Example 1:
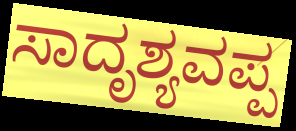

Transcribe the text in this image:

ಸಾದೃಶ್ಯವಪ್ಪ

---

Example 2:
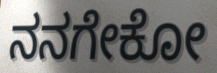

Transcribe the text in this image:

ನನಗೇಕೋ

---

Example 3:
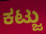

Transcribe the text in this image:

ಕಟ್ಜು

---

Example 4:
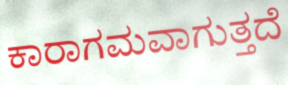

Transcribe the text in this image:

ಕಾರಾಗಮವಾಗುತ್ತದೆ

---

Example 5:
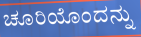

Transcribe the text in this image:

ಚೂರಿಯೊಂದನ್ನು